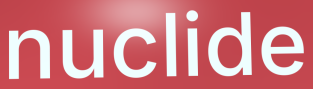
nuclide